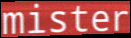
mister